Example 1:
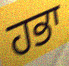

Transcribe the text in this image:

ਹਭਾ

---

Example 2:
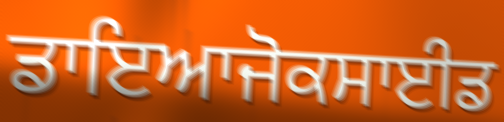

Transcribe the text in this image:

ਡਾਇਆਜੋਕਸਾਈਡ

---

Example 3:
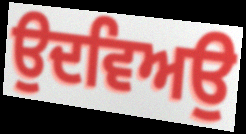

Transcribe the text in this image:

ਉਦਵਿਅਉ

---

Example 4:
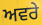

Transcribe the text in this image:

ਅਵਰੇ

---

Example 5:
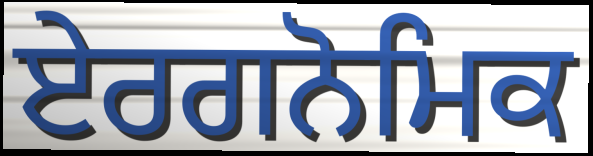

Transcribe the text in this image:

ਏਰਗਨੋਮਿਕ